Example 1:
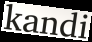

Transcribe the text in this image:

kandi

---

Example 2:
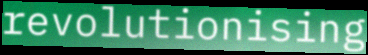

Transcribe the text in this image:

revolutionising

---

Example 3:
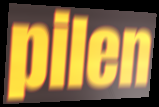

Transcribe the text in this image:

pilen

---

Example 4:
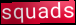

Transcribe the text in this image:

squads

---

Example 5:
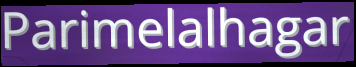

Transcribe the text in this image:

Parimelalhagar